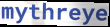
mythreye